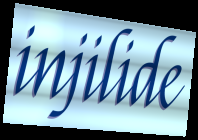
injilide